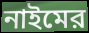
নাইমের